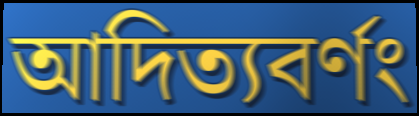
আদিত্যবর্ণং